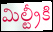
మిల్ట్రీకి